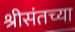
श्रीसंतच्या